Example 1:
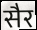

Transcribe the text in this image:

सैर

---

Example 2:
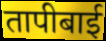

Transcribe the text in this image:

तापीबाई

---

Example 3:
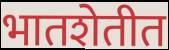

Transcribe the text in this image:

भातशेतीत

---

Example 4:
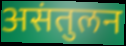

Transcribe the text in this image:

असंतुलन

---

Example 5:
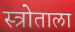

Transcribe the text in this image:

स्त्रोताला